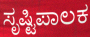
ಸೃಷ್ಟಿಪಾಲಕ